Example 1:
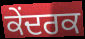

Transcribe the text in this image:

ਕੇਂਦਰਕ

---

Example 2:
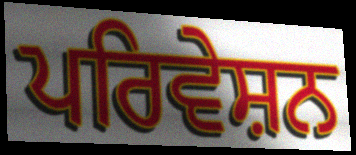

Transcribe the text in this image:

ਪਰਿਵੇਸ਼ਨ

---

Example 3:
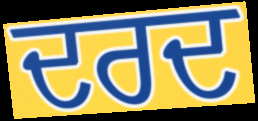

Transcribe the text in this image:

ਦਰਦ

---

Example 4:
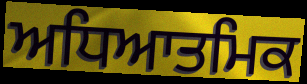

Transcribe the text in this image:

ਅਧਿਆਤਮਿਕ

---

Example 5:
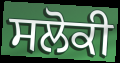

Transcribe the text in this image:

ਸਲੋਕੀ